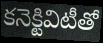
కనెక్టివిటీతో